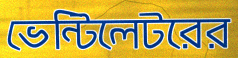
ভেন্টিলেটরের